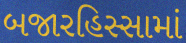
બજારહિસ્સામાં